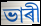
ভাৰী